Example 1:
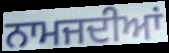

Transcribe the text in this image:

ਨਾਮਜਦੀਆਂ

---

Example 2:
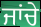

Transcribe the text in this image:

ਜਾਂਚੇ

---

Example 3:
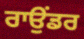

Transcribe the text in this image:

ਰਾਉਂਡਰ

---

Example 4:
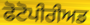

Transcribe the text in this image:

ਫੋਟੋਪੀਰੀਅਡ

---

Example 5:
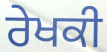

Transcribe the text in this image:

ਰੇਖਕੀ